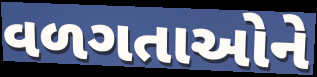
વળગતાઓને